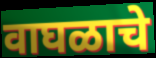
वाघळाचे